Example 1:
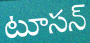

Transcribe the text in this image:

టూసన్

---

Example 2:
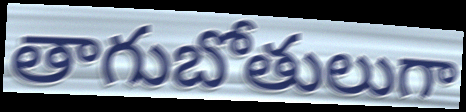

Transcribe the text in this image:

తాగుబోతులుగా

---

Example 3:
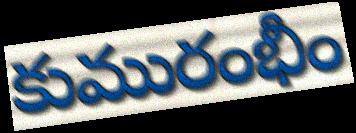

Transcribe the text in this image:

కుమురంభీం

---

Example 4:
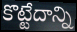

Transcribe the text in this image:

కొట్టేదాన్ని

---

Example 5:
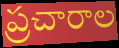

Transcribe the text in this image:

ప్రచారాల